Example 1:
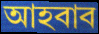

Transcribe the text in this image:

আহবাব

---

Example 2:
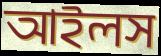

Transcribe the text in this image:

আইলস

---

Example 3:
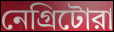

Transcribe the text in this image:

নেগ্রিটোরা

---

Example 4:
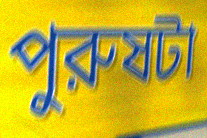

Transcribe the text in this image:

পুরুষটা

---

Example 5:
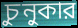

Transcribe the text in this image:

চুনুকার